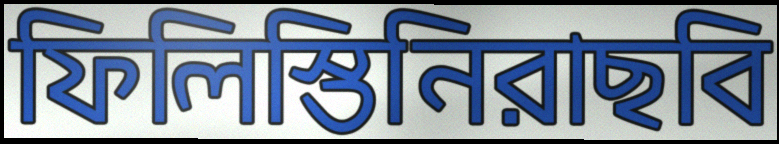
ফিলিস্তিনিরাছবি